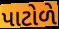
પાટોળે